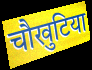
चौखुटिया